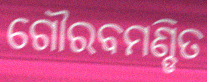
ଗୌରବମଣ୍ଡିତ